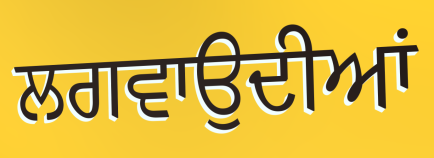
ਲਗਵਾਉਦੀਆਂ